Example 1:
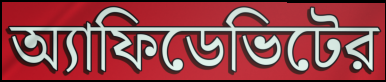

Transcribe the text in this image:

অ্যাফিডেভিটের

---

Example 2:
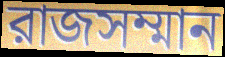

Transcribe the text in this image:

রাজসম্মান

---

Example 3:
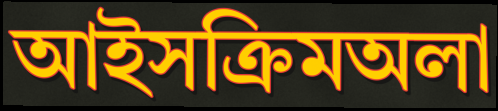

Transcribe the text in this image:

আইসক্রিমঅলা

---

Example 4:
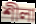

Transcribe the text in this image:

শীলা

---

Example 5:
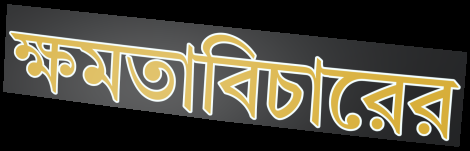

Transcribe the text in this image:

ক্ষমতাবিচারের